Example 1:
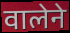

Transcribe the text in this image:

वालेने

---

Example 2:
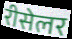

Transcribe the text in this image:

रीसेलर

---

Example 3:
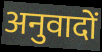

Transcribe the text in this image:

अनुवादों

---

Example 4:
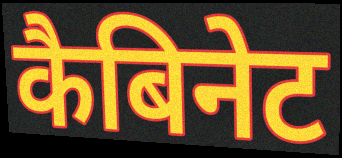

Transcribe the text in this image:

कैबिनेट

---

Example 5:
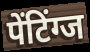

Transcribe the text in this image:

पेंटिंग्ज